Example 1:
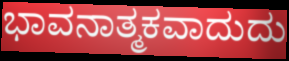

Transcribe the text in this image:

ಭಾವನಾತ್ಮಕವಾದುದು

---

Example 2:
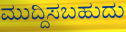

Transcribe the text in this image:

ಮುದ್ದಿಸಬಹುದು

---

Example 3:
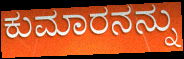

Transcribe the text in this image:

ಕುಮಾರನನ್ನು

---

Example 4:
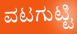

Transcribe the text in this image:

ವಟಗುಟ್ಟಿ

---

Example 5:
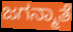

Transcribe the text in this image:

ಜಗನ್ಮಾತೆ